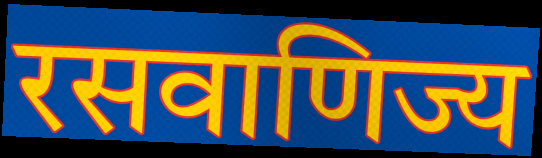
रसवाणिज्य